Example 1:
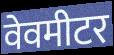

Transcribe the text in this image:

वेवमीटर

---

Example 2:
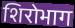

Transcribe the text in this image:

शिरोभाग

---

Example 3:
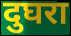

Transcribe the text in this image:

दुघरा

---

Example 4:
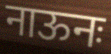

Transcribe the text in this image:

नाऊनः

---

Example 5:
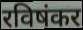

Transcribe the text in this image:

रविषंकर